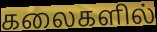
கலைகளில்